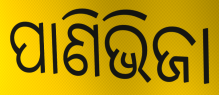
ପାଣିଭିଜା